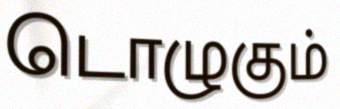
டொழுகும்